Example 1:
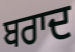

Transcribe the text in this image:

ਬਰਾਦ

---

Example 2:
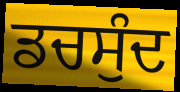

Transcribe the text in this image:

ਡਚਸੁੰਦ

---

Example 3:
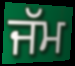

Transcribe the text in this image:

ਜੱਮ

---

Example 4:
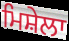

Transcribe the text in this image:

ਮਿਸ਼ੇਲਾ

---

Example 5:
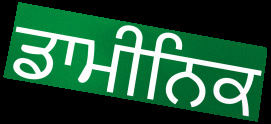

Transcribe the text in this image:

ਡਾਮੀਨਿਕ